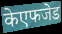
केएफजेड